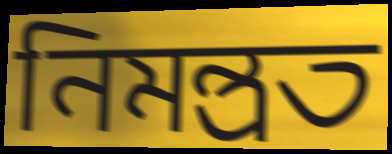
নিমন্ত্রত